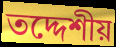
তদ্দেশীয়